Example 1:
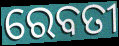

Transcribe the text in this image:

ରେବତୀ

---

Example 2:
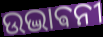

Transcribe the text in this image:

ଉଦ୍ଭାଵନୀ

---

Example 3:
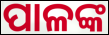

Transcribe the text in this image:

ପାଳଙ୍କ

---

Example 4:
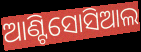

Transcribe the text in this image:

ଆଣ୍ଟିସୋସିଆଲ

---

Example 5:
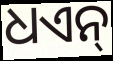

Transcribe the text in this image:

ଧଏନ୍